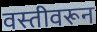
वस्तीवरून